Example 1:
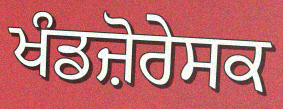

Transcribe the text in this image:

ਖੰਡਜ਼ੋਰੇਸਕ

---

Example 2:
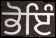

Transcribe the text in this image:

ਭੋਇੰ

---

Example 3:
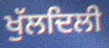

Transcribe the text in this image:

ਖੁੱਲਦਿਲੀ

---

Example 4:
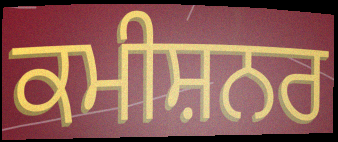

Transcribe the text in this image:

ਕਮੀਸ਼ਨਰ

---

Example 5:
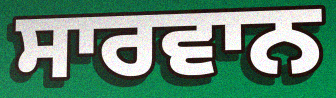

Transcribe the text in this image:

ਸਾਰਵਾਨ